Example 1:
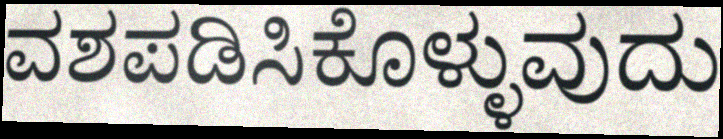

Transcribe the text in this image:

ವಶಪಡಿಸಿಕೊಳ್ಳುವುದು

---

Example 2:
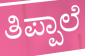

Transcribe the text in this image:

ತಿಪ್ಪಾಲೆ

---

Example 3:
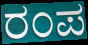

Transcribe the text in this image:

ರಂಪ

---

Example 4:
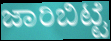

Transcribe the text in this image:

ಜಾರಿಬಿಟ್ಟೆ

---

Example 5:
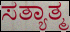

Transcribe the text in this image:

ಸತ್ಯಾತ್ಮ